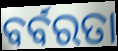
ବର୍ବରତା